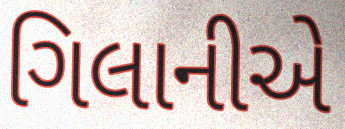
ગિલાનીએ